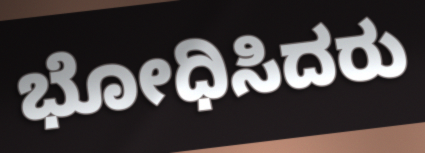
ಭೋಧಿಸಿದರು